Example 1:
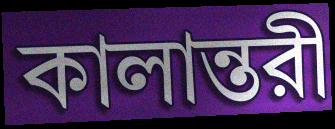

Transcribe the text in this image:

কালান্তরী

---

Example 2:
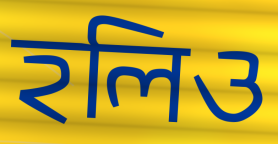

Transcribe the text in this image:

হলিও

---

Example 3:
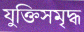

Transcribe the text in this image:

যুক্তিসমৃদ্ধ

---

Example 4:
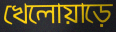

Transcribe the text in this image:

খেলোয়াড়ে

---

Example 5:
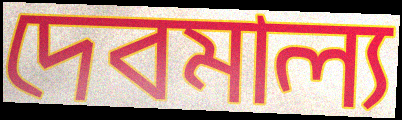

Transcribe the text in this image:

দেবমাল্য